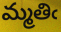
మ్మతిఁ